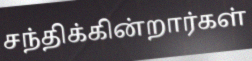
சந்திக்கின்றார்கள்